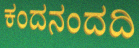
ಕಂದನಂದದಿ